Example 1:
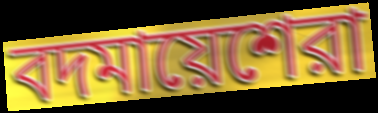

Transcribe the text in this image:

বদমায়েশেরা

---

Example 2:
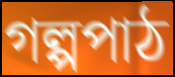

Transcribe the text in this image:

গল্পপাঠ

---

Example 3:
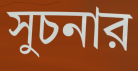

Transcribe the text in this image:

সুচনার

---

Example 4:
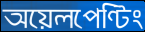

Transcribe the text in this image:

অয়েলপেণ্টিং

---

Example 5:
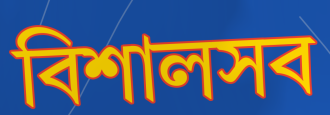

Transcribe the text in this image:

বিশালসব